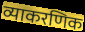
व्याकरणिक